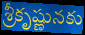
శ్రీకృష్ణునకు